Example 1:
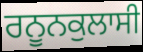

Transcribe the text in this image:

ਰਨੂਨਕੁਲਾਸੀ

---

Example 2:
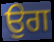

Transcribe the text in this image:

ਉਗ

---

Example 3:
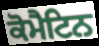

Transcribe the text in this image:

ਕੋਮੈਟਿਨ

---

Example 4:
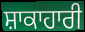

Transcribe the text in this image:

ਸ਼ਾਕਾਹਾਰੀ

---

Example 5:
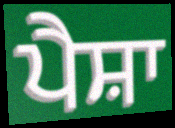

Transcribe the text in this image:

ਪੈਸ਼ਾ